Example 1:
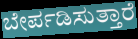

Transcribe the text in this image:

ಬೇರ್ಪಡಿಸುತ್ತಾರೆ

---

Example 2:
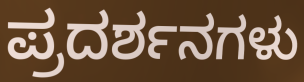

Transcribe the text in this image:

ಪ್ರದರ್ಶನಗಳು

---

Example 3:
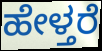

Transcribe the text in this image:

ಹೇಳ್ತರೆ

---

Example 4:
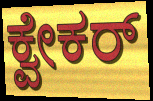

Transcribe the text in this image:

ಕ್ವೇಕರ್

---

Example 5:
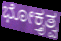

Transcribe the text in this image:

ಭೋಕ್ತೃತ್ವ